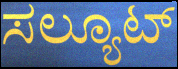
ಸಲ್ಯೂಟ್